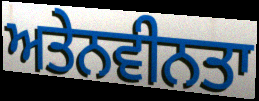
ਅਤੇਨਵੀਨਤਾ